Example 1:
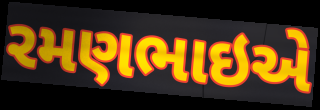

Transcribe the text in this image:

રમણભાઇએ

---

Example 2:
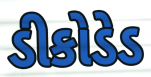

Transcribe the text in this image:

ડીકોડેડ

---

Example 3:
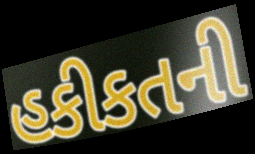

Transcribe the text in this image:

હકીકતની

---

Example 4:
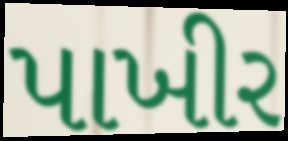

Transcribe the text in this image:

પાખીર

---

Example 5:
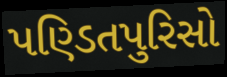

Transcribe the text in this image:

પણ્ડિતપુરિસો